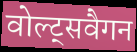
वोल्ट्सवैगन